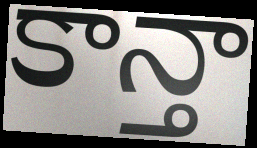
కాన్తా